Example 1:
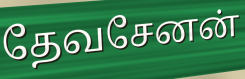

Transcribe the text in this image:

தேவசேனன்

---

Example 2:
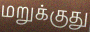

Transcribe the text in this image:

மறுக்குது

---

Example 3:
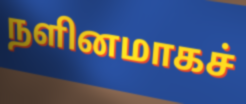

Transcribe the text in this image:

நளினமாகச்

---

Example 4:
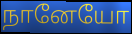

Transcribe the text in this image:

நானேயோ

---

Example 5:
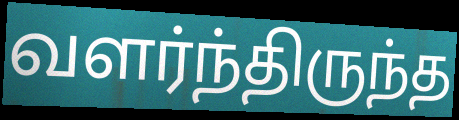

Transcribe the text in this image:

வளர்ந்திருந்த